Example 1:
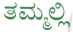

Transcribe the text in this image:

ತಮ್ಮಲ್ಲಿ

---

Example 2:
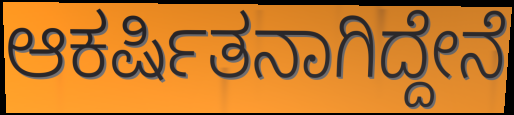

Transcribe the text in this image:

ಆಕರ್ಷಿತನಾಗಿದ್ದೇನೆ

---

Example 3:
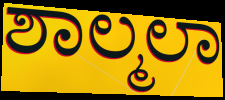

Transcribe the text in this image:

ಶಾಲ್ಮಲಾ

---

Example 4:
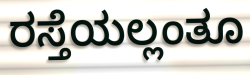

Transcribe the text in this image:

ರಸ್ತೆಯಲ್ಲಂತೂ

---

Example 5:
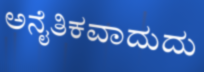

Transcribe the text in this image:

ಅನೈತಿಕವಾದುದು